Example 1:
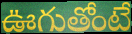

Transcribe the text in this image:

ఊగుతోంటే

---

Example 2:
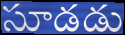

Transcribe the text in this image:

సూడడు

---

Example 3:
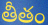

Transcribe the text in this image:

తీతం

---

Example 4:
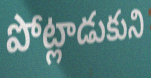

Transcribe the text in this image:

పోట్లాడుకుని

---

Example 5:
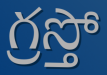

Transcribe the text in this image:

గ్రస్తో